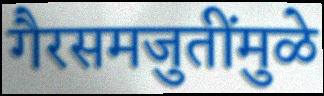
गैरसमजुतींमुळे